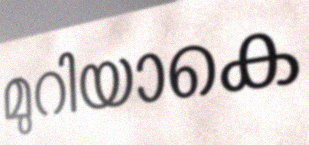
മുറിയാകെ